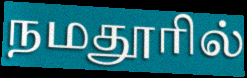
நமதூரில்